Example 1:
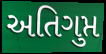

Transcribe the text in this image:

અતિગુપ્ત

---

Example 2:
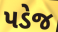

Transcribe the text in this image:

પડેજ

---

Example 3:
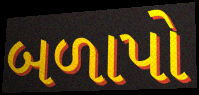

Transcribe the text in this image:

બળાપો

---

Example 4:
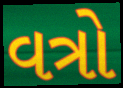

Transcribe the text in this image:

વત્રો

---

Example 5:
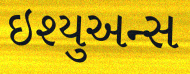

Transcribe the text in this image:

ઇશ્યુઅન્સ